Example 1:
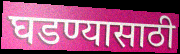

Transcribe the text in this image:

घडण्यासाठी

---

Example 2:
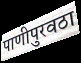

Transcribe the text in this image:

पाणीपुरवठा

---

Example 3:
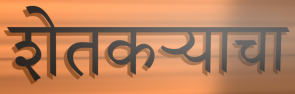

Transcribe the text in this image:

शेतकऱ्याचा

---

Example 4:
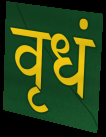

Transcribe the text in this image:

वृधं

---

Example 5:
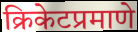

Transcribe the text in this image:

क्रिकेटप्रमाणे